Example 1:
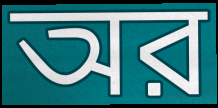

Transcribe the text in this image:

অর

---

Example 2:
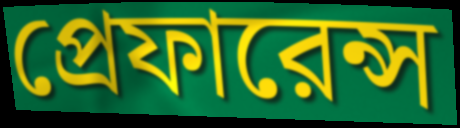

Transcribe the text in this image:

প্রেফারেন্স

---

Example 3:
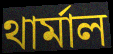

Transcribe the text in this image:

থার্মাল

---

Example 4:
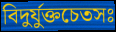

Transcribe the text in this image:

বিদুর্যুক্তচেতসঃ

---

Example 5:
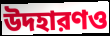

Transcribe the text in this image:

উদহারণও